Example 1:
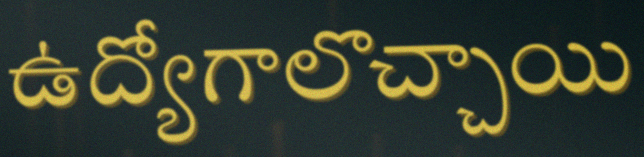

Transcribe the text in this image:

ఉద్యోగాలొచ్చాయి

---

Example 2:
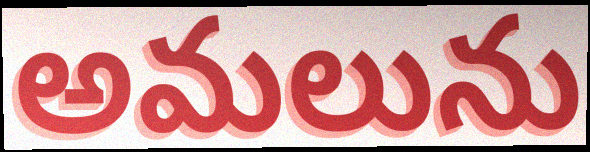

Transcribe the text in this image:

అమలును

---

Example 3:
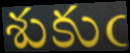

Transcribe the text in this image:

శుకుఁ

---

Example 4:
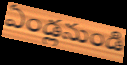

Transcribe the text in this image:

ఏండ్లనుండి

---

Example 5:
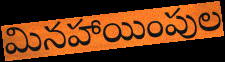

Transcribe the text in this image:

మినహాయింపుల